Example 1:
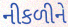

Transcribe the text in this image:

નીકળીને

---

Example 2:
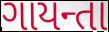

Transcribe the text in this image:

ગાયન્તા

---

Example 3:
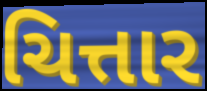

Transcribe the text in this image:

ચિત્તાર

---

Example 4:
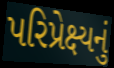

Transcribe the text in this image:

પરિપ્રેક્ષ્યનું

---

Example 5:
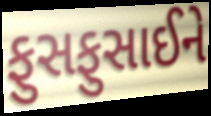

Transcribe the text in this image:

ફુસફુસાઈને